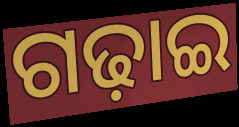
ଗଢ଼ାଇ